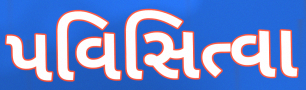
પવિસિત્વા